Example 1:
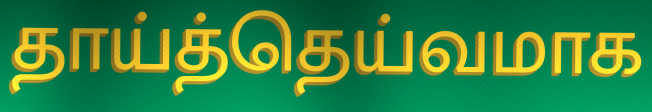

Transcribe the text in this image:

தாய்த்தெய்வமாக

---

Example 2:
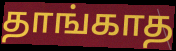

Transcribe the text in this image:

தாங்காத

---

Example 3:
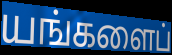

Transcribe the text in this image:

யங்களைப்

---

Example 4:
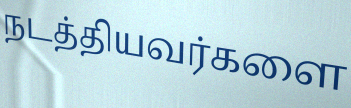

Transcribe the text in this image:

நடத்தியவர்களை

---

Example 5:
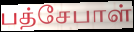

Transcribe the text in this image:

பத்சேபாள்